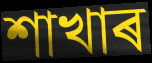
শাখাৰ